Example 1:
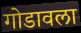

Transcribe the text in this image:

गोडावला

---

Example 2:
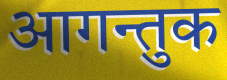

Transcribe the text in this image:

आगन्तुक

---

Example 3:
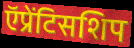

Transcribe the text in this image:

ऍप्रेंटिसशिप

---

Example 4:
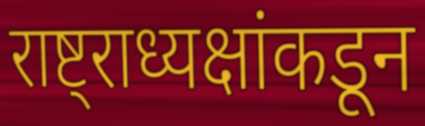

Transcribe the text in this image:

राष्ट्राध्यक्षांकडून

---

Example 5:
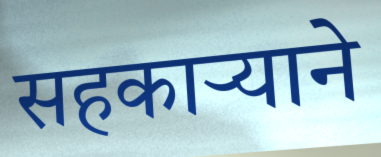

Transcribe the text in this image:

सहकाऱ्याने